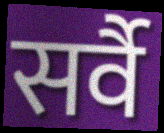
सर्वै